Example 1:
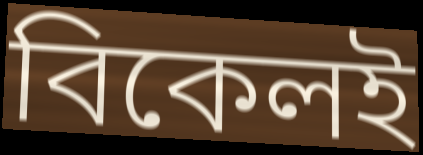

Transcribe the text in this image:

বিকেলই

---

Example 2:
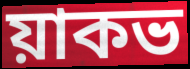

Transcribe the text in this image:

য়াকভ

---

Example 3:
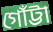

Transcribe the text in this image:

গোঁট্টা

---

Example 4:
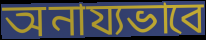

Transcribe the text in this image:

অনায্যভাবে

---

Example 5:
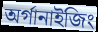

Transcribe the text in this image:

অর্গানাইজিং